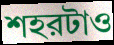
শহরটাও